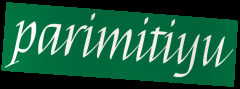
parimitiyu